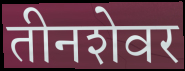
तीनशेवर